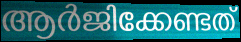
ആർജിക്കേണ്ടത്